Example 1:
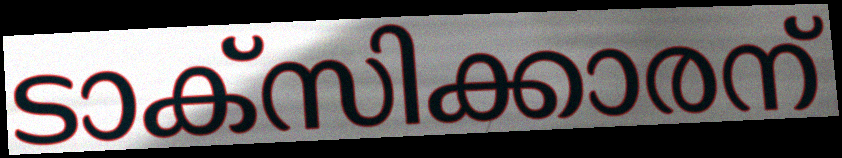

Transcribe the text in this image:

ടാക്സിക്കാരന്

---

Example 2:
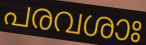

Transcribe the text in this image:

പരവശാഃ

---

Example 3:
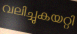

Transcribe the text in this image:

വലിച്ചുകയറ്റി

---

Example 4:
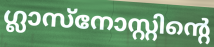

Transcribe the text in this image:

ഗ്ലാസ്നോസ്റ്റിന്റെ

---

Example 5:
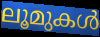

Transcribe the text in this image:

ലൂമുകൾ